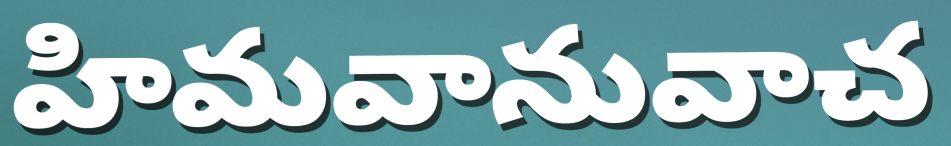
హిమవానువాచ